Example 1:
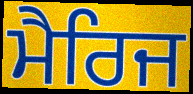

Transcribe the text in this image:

ਮੈਰਿਜ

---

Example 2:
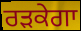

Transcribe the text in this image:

ਰੜਕੇਗਾ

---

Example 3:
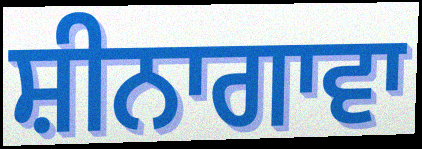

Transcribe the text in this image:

ਸ਼ੀਨਾਗਾਵਾ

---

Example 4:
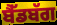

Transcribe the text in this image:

ਬੈੱਡਬੱਗ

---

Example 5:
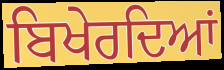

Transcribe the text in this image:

ਬਿਖੇਰਦਿਆਂ